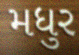
મધુર